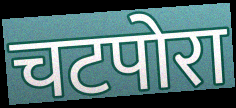
चटपोरा